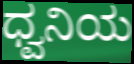
ಧ್ವನಿಯ